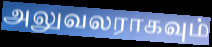
அலுவலராகவும்